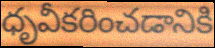
ధృవీకరించడానికి